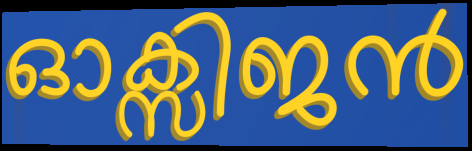
ഓക്സിജൻ